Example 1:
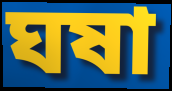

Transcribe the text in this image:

ঘষা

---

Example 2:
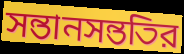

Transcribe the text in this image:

সন্তানসন্ততির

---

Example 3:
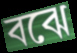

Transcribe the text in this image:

বঝে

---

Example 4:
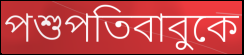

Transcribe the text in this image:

পশুপতিবাবুকে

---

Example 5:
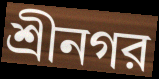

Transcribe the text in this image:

শ্রীনগর